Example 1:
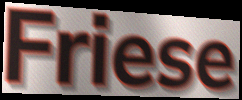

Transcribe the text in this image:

Friese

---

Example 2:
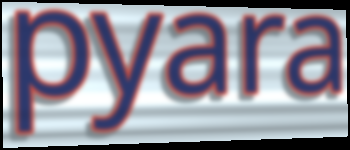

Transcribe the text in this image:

pyara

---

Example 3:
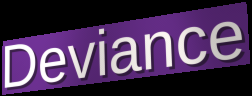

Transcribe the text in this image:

Deviance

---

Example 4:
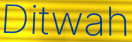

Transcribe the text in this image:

Ditwah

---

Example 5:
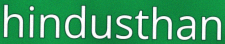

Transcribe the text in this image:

hindusthan